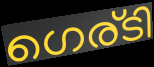
ഗെര്ടി